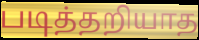
படித்தறியாத